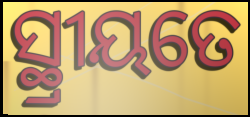
ସ୍ଥ୍ରୀୟତେ